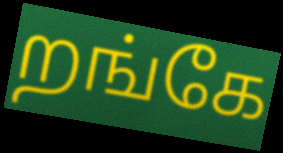
றங்கே